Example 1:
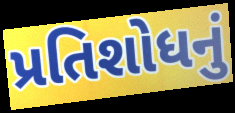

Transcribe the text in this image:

પ્રતિશોધનું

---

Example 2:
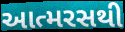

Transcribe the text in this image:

આત્મરસથી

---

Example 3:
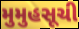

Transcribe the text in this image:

મુમુહસૂચી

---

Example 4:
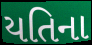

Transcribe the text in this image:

યતિના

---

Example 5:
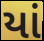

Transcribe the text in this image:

યાં